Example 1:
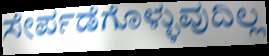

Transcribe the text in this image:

ಸೇರ್ಪಡೆಗೊಳ್ಳುವುದಿಲ್ಲ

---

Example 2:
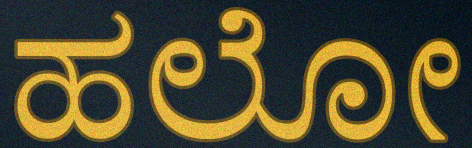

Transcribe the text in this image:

ಹಲೋ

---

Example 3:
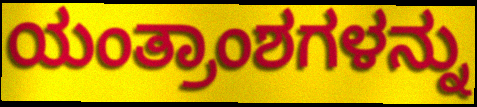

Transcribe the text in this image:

ಯಂತ್ರಾಂಶಗಳನ್ನು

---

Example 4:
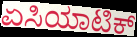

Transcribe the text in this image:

ಏಸಿಯಾಟಿಕ್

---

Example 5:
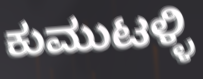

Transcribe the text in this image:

ಕುಮುಟಳ್ಳಿ